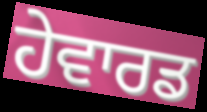
ਹੇਵਾਰਡ